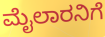
ಮೈಲಾರನಿಗೆ